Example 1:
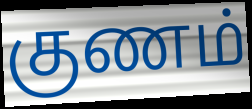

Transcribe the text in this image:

குணம்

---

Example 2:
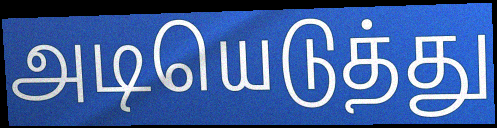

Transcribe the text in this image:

அடியெடுத்து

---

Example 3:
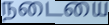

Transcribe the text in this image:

நடையை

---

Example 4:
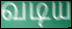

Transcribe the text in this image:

வடிய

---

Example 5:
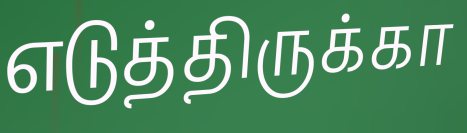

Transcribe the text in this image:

எடுத்திருக்கா